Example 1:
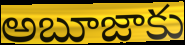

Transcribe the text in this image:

అబూజాకు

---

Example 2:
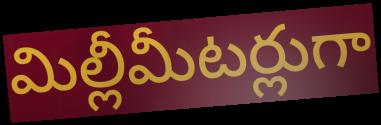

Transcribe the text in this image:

మిల్లీమీటర్లుగా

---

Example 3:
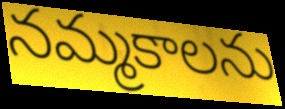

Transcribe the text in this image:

నమ్మకాలను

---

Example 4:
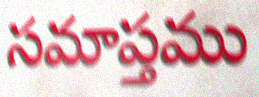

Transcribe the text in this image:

సమాప్తము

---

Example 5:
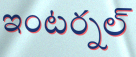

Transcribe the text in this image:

ఇంటర్నల్